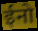
ईनो